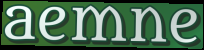
aemne